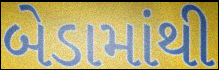
બેડામાંથી